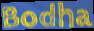
Bodha